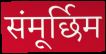
संमूर्छिम